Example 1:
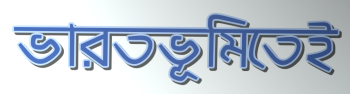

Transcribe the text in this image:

ভারতভূমিতেই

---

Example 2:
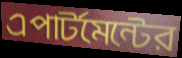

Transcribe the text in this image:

এপার্টমেন্টের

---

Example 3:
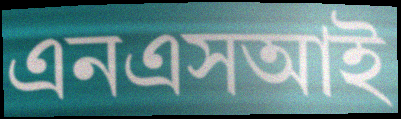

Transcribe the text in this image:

এনএসআই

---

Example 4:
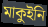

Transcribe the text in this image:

মাকুইনি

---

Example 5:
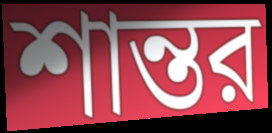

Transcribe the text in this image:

শান্তর